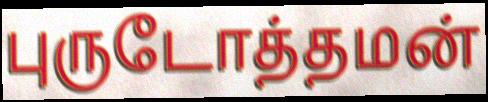
புருடோத்தமன்